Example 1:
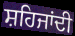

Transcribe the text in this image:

ਸ਼ਹਿਜਾਂਦੀ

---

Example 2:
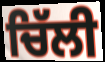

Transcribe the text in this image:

ਚਿੱਲੀ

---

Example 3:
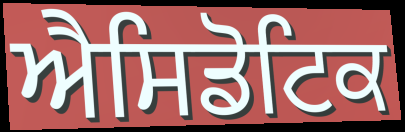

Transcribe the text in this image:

ਐਸਿਡੋਟਿਕ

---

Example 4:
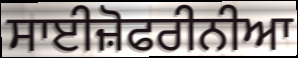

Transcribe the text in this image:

ਸਾਈਜ਼ੋਫਰੀਨੀਆ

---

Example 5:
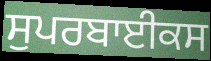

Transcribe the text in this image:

ਸੁਪਰਬਾਈਕਸ